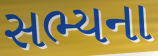
સભ્યના